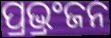
ପ୍ରଭ୍ରଂଜନ